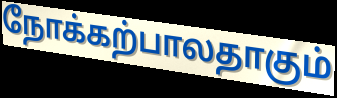
நோக்கற்பாலதாகும்